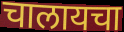
चालायचा